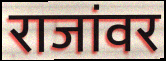
राजांवर